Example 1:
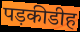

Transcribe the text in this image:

पड़कीडीह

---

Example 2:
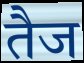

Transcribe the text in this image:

तैज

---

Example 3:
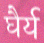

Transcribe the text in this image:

घैर्य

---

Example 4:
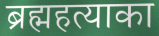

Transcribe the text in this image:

ब्रह्महत्याका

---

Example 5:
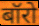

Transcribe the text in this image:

बॉरो